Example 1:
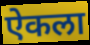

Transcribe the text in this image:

ऐकला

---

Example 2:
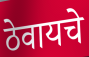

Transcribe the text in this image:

ठेवायचे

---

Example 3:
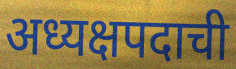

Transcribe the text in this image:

अध्यक्षपदाची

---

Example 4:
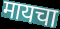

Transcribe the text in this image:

मायचा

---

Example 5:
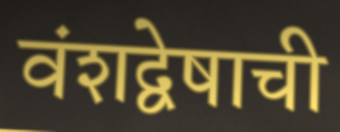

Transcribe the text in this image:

वंशद्वेषाची